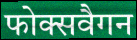
फोक्सवैगन